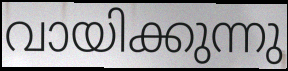
വായിക്കുന്നു